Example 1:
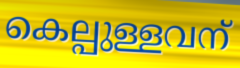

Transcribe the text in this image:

കെല്പുള്ളവന്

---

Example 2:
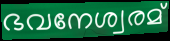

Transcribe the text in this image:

ഭവനേശ്വരമ്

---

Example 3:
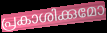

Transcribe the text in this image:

പ്രകാശിക്കുമോ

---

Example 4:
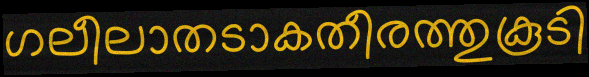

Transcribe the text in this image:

ഗലീലാതടാകതീരത്തുകൂടി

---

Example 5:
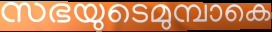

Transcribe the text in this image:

സഭയുടെമുമ്പാകെ